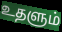
உதளும்